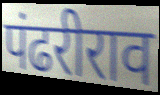
पंढरीराव